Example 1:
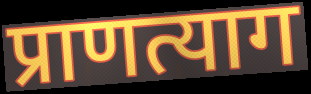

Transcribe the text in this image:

प्राणत्याग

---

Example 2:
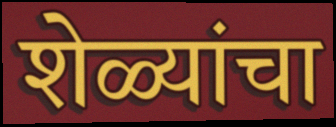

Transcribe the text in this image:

शेळ्यांचा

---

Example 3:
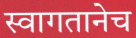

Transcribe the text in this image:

स्वागतानेच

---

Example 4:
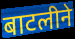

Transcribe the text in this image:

बाटलीने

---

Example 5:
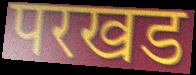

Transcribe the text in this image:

परखड